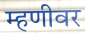
म्हणीवर